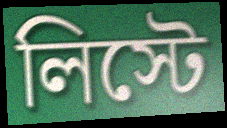
লিস্টে